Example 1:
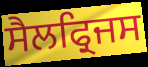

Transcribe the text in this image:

ਸੈਲਫ੍ਰਿਜਸ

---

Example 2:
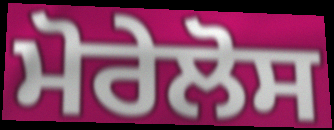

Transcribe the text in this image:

ਮੋਰੇਲੋਸ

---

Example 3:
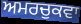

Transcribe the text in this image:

ਅਮਰਚੁਕਵਾ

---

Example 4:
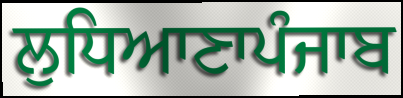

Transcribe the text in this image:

ਲੁਧਿਆਣਾਪੰਜਾਬ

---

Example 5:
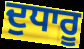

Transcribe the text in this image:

ਦੁਧਾਰੂ